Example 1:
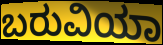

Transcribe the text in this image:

ಬರುವಿಯಾ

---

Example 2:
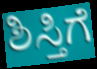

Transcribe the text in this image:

ಶಿಸ್ತಿಗೆ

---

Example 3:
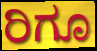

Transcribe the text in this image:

ರಿಗೂ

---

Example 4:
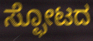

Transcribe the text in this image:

ಸ್ಫೋಟದ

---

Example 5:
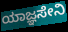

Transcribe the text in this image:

ಯಾಜ್ಞಸೇನಿ